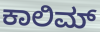
ಕಾಲಿಮ್